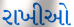
રાખીઓ